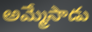
అమ్మేసాడు